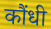
कौंधी